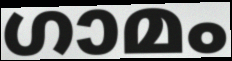
ഗാമം